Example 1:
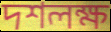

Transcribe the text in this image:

দশলক্ষ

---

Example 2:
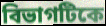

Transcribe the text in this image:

বিভাগটিকে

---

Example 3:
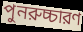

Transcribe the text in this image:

পুনরুচ্চারণ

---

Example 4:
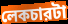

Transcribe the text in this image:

লেকচারটা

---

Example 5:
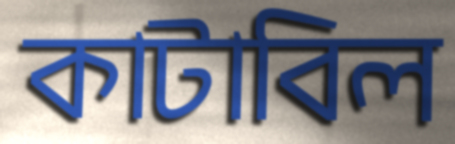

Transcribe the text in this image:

কাটাবিল